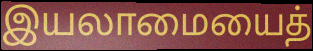
இயலாமையைத்